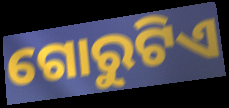
ଗୋରୁଟିଏ